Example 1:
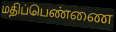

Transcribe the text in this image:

மதிப்பெண்ணை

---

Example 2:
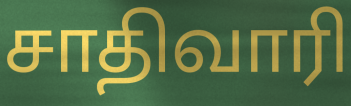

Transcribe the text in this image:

சாதிவாரி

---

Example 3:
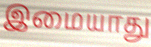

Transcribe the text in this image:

இமையாது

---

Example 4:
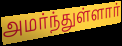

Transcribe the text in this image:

அமர்ந்துள்ளார்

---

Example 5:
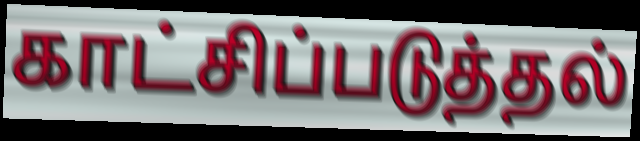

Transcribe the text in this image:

காட்சிப்படுத்தல்